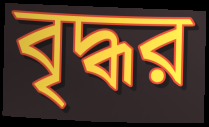
বৃদ্ধর